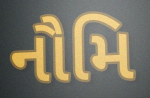
નૌમિ